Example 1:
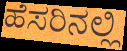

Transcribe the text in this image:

ಹೆಸರಿನಲ್ಲಿ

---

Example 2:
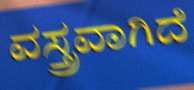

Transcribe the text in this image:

ವಸ್ತ್ರವಾಗಿದೆ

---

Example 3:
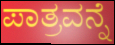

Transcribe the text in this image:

ಪಾತ್ರವನ್ನೆ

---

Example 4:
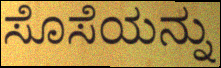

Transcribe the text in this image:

ಸೊಸೆಯನ್ನು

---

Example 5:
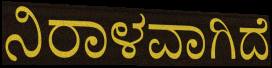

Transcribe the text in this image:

ನಿರಾಳವಾಗಿದೆ